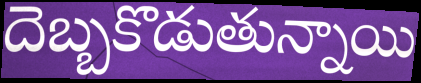
దెబ్బకొడుతున్నాయి